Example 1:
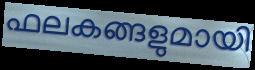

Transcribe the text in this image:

ഫലകങ്ങളുമായി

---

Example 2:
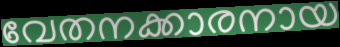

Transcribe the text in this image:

വേതനക്കാരനായ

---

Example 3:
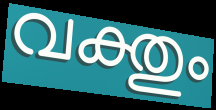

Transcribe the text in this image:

വക്തും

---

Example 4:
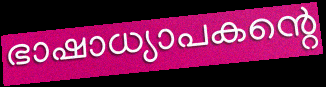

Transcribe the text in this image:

ഭാഷാധ്യാപകന്റെ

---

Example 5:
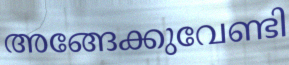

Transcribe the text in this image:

അങ്ങേക്കുവേണ്ടി